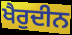
ਖੈਰੁਦੀਨ